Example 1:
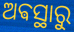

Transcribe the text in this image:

ଅଵସ୍ଥାରୁ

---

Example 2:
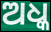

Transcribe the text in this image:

ଅଧ୍କ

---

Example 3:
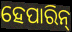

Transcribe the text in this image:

ହେପାରିନ୍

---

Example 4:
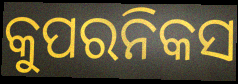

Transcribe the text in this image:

କୁପରନିକସ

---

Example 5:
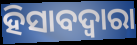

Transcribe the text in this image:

ହିସାବଦ୍ଵାରା